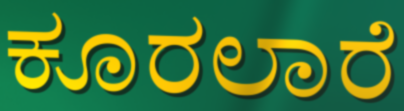
ಕೂರಲಾರೆ